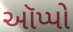
ઑપ્પો